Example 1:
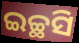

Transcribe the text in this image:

ଇଚ୍ଛସି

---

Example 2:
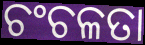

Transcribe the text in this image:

ଚଂଚଳତା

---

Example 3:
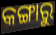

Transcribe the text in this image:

କଙ୍ଗାରୁ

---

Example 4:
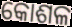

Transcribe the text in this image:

କୋଶଳ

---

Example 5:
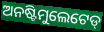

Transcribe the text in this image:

ଅନଷ୍ଟିମୁଲେଟେଡ୍